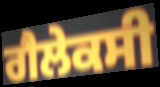
ਗੈਲੇਕਸੀ